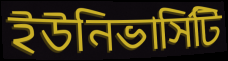
ইউনিভার্সিটি